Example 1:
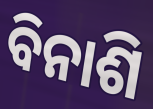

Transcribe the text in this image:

ବିନାଶି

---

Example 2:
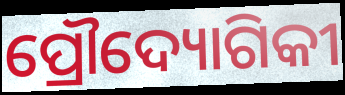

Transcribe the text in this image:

ପ୍ରୌଦ୍ୟୋଗିକୀ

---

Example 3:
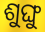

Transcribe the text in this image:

ଶୁଙ୍ଘୁ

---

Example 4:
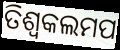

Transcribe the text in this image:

ତିଶ୍ୱକଲମପ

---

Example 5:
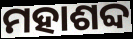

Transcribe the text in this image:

ମହାଶବ୍ଦ